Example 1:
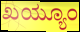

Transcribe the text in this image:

ಖಯ್ಯೂಂ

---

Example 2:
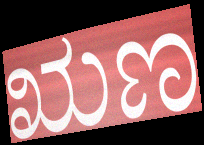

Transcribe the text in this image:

ಋಣ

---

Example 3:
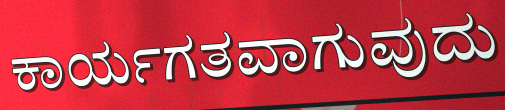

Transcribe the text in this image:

ಕಾರ್ಯಗತವಾಗುವುದು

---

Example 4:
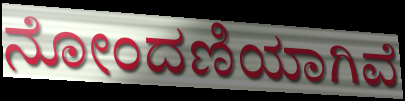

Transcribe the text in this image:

ನೋಂದಣಿಯಾಗಿವೆ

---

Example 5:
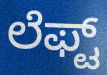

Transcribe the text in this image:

ಲೆಫ್ಟ್